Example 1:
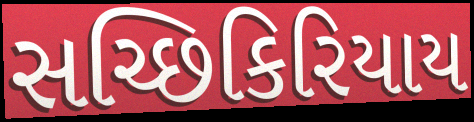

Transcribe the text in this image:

સચ્છિકિરિયાય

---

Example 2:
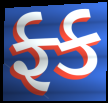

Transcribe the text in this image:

ફ્ક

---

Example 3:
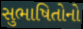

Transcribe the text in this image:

સુભાષિતોનો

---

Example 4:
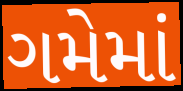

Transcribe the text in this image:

ગમેમાં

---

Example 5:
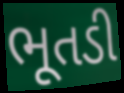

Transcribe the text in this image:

ભૂતડી